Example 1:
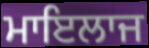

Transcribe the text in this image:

ਮਾਇਲਾਜ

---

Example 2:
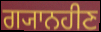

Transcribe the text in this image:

ਗ੍ਯਾਨਹੀਣ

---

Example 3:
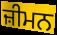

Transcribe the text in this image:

ਜ਼ੀਮਨ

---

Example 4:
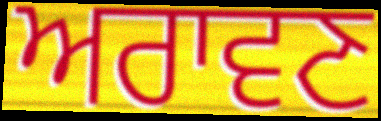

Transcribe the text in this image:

ਅਰਾਵਣ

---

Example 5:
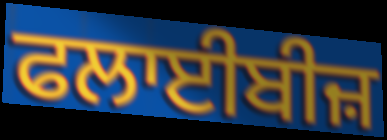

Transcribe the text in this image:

ਫਲਾਈਬੀਜ਼